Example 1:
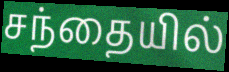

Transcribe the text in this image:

சந்தையில்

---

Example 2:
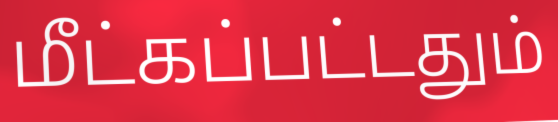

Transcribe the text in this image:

மீட்கப்பட்டதும்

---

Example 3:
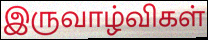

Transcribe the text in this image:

இருவாழ்விகள்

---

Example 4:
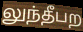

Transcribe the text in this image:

லுந்தீபற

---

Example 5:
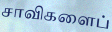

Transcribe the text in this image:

சாவிகளைப்